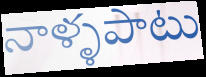
నాళ్ళపాటు